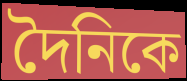
দৈনিকে